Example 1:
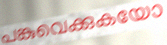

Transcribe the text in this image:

പങ്കുവെക്കുകയോ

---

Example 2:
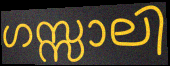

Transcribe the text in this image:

ഗസ്സാലി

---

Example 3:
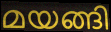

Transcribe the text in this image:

മയങ്ങി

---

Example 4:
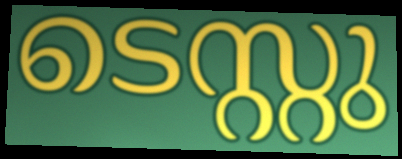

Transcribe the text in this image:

ടെസ്റ്റു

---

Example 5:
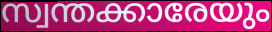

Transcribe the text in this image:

സ്വന്തക്കാരേയും